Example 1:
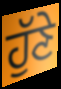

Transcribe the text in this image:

ਹੁੱਣੇ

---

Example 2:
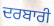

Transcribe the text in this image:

ਦਰਬਾਰੀ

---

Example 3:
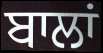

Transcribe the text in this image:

ਬਾਲਾਂ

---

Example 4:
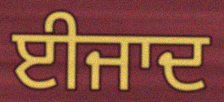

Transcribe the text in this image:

ਈਜਾਦ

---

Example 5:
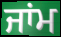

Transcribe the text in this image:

ਜਾਂਮ